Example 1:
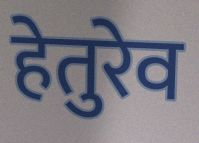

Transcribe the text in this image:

हेतुरेव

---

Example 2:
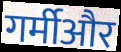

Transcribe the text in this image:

गर्मीऔर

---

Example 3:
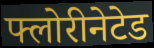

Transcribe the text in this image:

फ्लोरीनेटेड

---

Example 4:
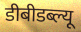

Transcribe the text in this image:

डीबीडब्ल्यू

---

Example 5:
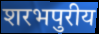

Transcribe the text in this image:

शरभपुरीय